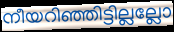
നീയറിഞ്ഞിട്ടില്ലല്ലോ